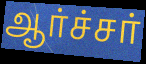
ஆர்ச்சர்